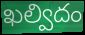
ఖల్విదం